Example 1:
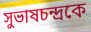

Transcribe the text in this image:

সুভাষচন্দ্রকে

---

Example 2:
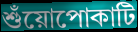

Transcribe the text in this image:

শুঁয়োপোকাটি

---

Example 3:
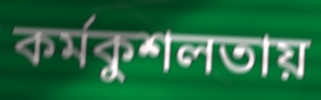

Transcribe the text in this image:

কর্মকুশলতায়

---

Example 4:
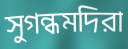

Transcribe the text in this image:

সুগন্ধমদিরা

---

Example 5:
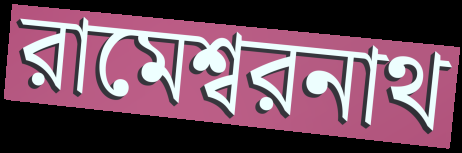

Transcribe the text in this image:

রামেশ্বরনাথ